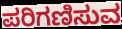
ಪರಿಗಣಿಸುವ